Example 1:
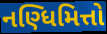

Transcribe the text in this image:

નણ્ધિમિત્તો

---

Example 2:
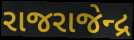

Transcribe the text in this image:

રાજરાજેન્દ્ર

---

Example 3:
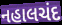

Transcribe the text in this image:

નહાલચંદ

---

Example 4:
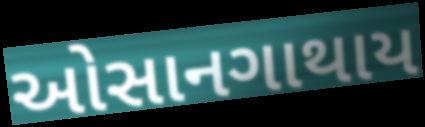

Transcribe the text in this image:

ઓસાનગાથાય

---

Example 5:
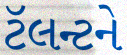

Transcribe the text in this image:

ટૅલન્ટને